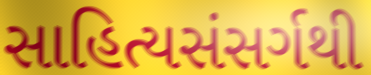
સાહિત્યસંસર્ગથી